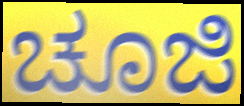
ಚೂಜಿ